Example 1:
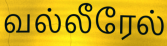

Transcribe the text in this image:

வல்லீரேல்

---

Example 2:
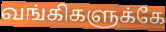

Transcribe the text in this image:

வங்கிகளுக்கே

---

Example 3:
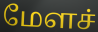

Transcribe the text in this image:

மேளச்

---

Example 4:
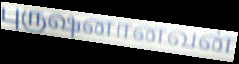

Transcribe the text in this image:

புருஷனானவன்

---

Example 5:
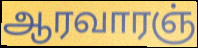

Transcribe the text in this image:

ஆரவாரஞ்